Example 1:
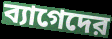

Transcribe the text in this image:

ব্যাগেদের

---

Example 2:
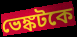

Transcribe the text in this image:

ভেঙ্কটকে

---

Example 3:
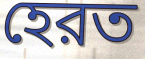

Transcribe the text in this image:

হেরত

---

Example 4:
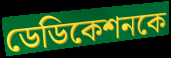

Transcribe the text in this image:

ডেডিকেশনকে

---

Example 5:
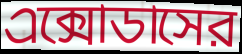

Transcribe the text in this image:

এক্সোডাসের